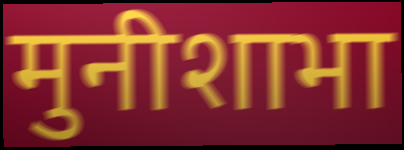
मुनीशाभा